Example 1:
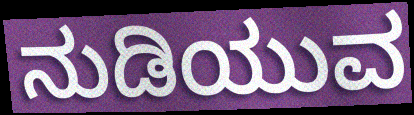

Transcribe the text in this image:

ನುಡಿಯುವ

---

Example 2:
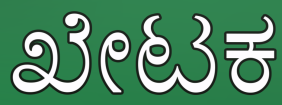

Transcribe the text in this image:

ಖೇಟಕ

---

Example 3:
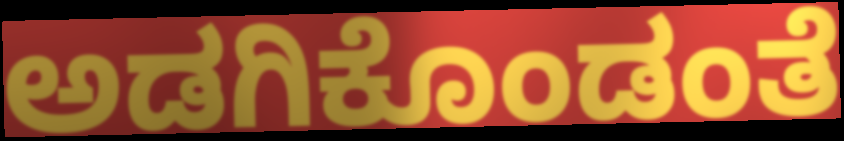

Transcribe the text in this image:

ಅಡಗಿಕೊಂಡಂತೆ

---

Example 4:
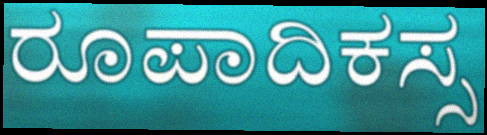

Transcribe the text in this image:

ರೂಪಾದಿಕಸ್ಸ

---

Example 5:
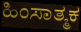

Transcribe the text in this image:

ಹಿಂಸಾತ್ಮಕ